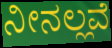
ನೀನಲ್ಲವೆ